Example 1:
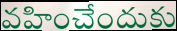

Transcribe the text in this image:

వహించేందుకు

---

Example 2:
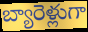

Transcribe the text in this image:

బ్యారెళ్లుగా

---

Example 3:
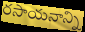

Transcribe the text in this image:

రసాయనాన్ని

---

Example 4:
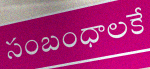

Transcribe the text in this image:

సంబంధాలకే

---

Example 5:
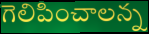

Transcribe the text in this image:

గెలిపించాలన్న